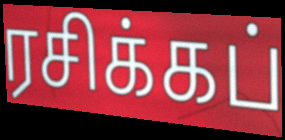
ரசிக்கப்